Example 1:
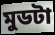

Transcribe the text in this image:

মুডটা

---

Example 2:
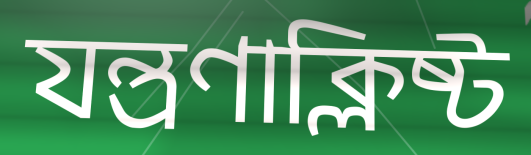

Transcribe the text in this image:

যন্ত্রণাক্লিষ্ট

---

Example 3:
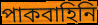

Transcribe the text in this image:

পাকবাহিনি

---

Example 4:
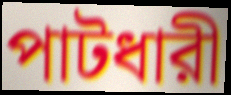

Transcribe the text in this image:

পাটধারী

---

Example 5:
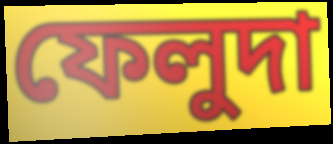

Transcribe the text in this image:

ফেলুদা